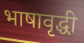
भाषावृद्धी